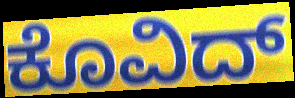
ಕೊವಿದ್